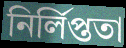
নির্লিপ্ততা